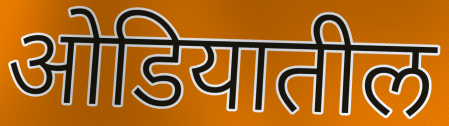
ओडियातील